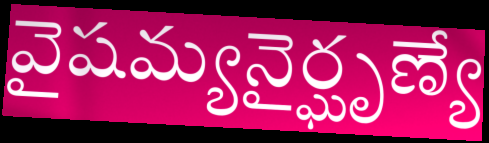
వైషమ్యనైర్ఘృణ్యే